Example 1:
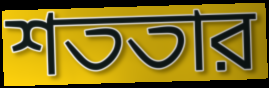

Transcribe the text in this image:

শততার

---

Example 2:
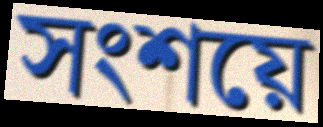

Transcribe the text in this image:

সংশয়ে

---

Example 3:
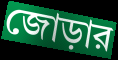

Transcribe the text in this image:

জোড়ার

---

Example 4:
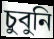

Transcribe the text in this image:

চুবুনি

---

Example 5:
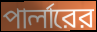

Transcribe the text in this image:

পার্লারের